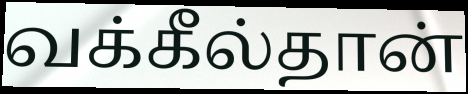
வக்கீல்தான்